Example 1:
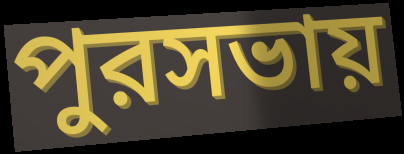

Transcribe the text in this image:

পুরসভায়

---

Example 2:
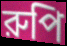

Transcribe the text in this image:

রুপি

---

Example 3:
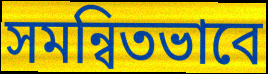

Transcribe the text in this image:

সমন্বিতভাবে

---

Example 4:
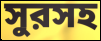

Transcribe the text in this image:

সুরসহ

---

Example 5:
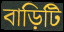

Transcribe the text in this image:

বাড়িটি